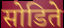
सोडिते